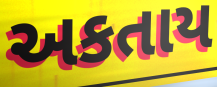
અકતાય